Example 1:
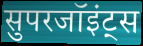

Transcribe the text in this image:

सुपरजॉइंट्स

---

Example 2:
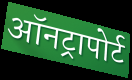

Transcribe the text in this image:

ऑनट्रापोर्ट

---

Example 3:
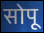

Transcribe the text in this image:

सोपू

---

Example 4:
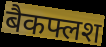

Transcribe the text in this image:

बैकफ्लश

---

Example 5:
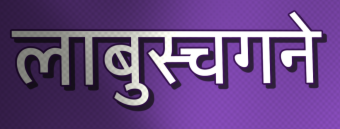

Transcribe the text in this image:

लाबुस्चगने